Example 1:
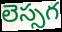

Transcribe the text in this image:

లెస్సగ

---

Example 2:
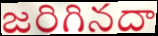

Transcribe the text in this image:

జరిగినదా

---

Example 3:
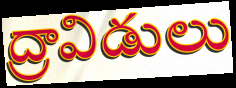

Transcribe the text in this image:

ద్రావిడులు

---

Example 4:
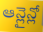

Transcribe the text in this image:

ఆన్లైన్లో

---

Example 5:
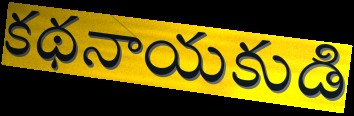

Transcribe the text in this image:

కథనాయకుడి